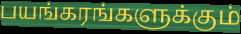
பயங்கரங்களுக்கும்